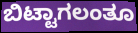
ಬಿಟ್ಟಾಗಲಂತೂ